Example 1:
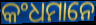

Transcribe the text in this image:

କଂଧମାନେ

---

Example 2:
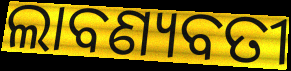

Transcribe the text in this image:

ଲାବଣ୍ୟବତୀ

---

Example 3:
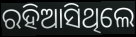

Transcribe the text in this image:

ରହିଆସିଥିଲେ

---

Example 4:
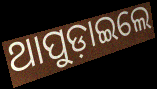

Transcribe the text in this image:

ଥାପୁଡ଼ାଇଲେ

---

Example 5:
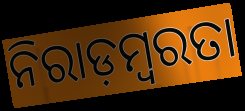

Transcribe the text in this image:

ନିରାଡ଼ମ୍ବରତା